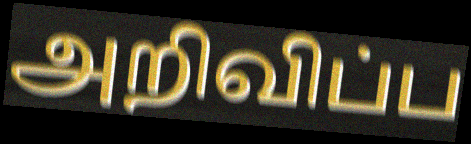
அறிவிப்ப